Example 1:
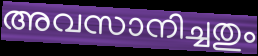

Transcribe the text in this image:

അവസാനിച്ചതും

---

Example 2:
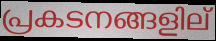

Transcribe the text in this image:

പ്രകടനങ്ങളില്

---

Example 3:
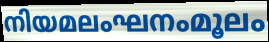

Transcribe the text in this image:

നിയമലംഘനംമൂലം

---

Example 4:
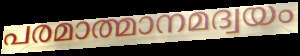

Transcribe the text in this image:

പരമാത്മാനമദ്വയം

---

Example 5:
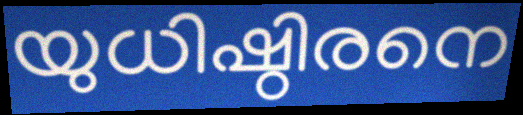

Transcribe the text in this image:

യുധിഷ്ഠിരനെ